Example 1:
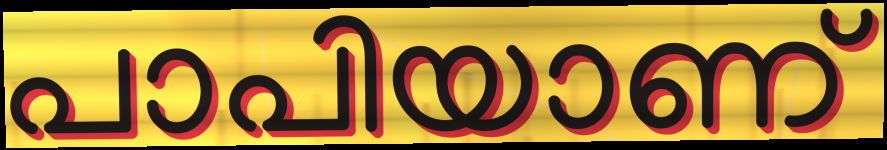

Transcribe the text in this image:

പാപിയാണ്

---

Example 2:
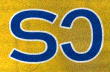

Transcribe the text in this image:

ടാ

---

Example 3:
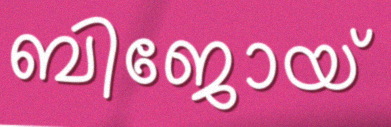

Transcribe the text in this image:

ബിജോയ്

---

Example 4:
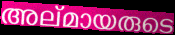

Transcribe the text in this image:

അല്മായരുടെ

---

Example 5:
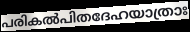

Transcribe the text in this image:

പരികൽപിതദേഹയാത്രാഃ